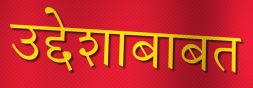
उद्देशाबाबत